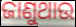
ଜାଣୁଥାଉ